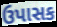
ઉપાસક